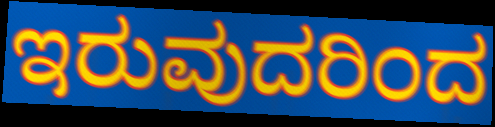
ಇರುವುದರಿಂದ